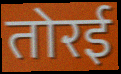
तोरई